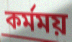
কর্মময়